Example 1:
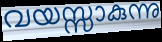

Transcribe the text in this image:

വയസ്സാകുന്നു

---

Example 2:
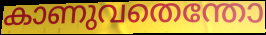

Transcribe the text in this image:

കാണുവതെന്തോ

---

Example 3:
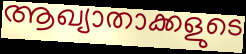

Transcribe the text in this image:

ആഖ്യാതാക്കളുടെ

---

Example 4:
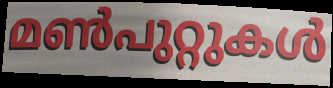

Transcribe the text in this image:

മൺപുറ്റുകൾ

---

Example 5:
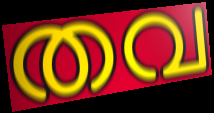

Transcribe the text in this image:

തവ